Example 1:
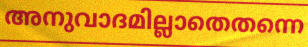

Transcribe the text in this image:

അനുവാദമില്ലാതെതന്നെ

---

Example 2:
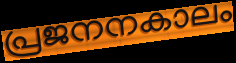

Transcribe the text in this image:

പ്രജനനകാലം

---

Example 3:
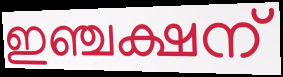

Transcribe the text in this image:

ഇഞ്ചക്ഷന്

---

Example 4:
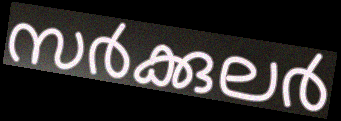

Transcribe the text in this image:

സർക്കുലർ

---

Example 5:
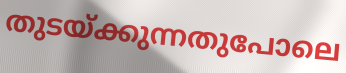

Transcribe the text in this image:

തുടയ്ക്കുന്നതുപോലെ